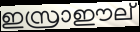
ഇസ്രാഈല്